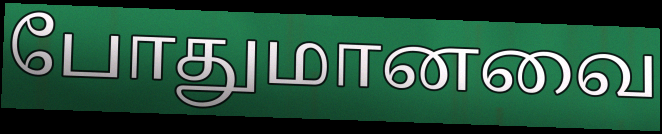
போதுமானவை